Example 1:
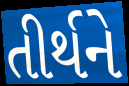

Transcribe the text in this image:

તીર્થને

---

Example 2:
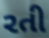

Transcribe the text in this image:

રતી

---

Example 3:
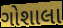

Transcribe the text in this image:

ગોશાલા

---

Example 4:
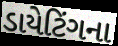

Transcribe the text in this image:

ડાયેટિંગના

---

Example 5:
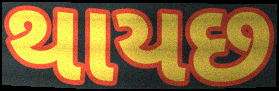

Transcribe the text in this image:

થાયછ